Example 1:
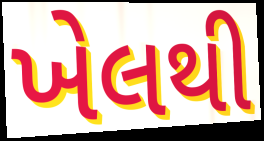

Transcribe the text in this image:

ખેલથી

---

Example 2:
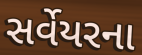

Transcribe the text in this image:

સર્વેયરના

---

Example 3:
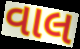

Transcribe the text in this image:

વાલ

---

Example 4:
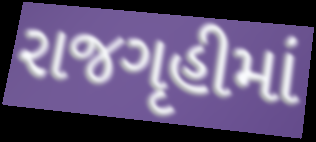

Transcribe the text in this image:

રાજગૃહીમાં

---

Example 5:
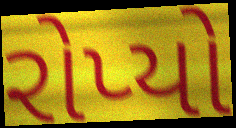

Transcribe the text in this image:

રોપ્યો